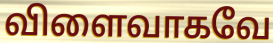
விளைவாகவே